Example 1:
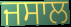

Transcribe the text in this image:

ਜਸਾਲ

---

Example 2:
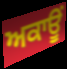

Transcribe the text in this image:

ਅਕਾਊਂ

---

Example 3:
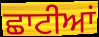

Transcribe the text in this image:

ਛਾਟੀਆਂ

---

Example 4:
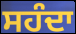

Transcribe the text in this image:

ਸਹੰਦਾ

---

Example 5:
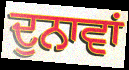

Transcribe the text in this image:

ਦੁਨਾਵਾਂ